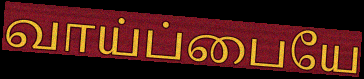
வாய்ப்பையே